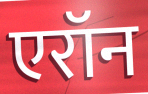
एरॉन